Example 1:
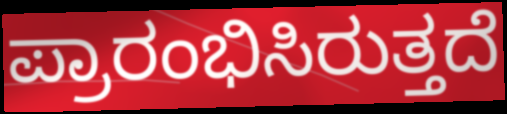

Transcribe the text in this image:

ಪ್ರಾರಂಭಿಸಿರುತ್ತದೆ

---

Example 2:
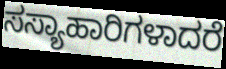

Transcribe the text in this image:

ಸಸ್ಯಾಹಾರಿಗಳಾದರೆ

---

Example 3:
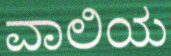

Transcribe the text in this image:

ವಾಲಿಯ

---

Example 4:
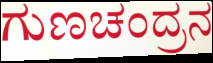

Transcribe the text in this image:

ಗುಣಚಂದ್ರನ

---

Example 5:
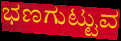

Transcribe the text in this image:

ಭಣಗುಟ್ಟುವ